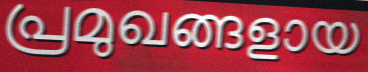
പ്രമുഖങ്ങളായ